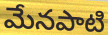
మేనపాటి